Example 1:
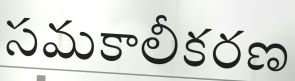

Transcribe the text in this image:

సమకాలీకరణ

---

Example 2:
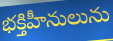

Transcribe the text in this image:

భక్తిహీనులును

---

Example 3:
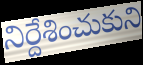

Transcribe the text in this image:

నిర్దేశించుకుని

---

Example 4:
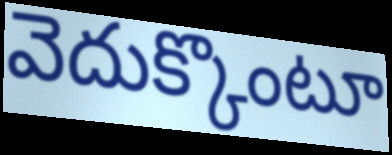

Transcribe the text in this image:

వెదుక్కొంటూ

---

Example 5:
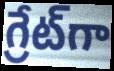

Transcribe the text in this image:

గ్రేట్‌గా